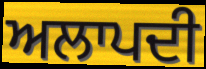
ਅਲਾਪਦੀ